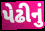
પેઢીનું